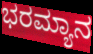
ಭರಮ್ಯಾನ